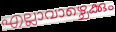
എല്ലാവാഴ്ചെക്കും